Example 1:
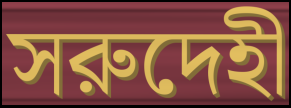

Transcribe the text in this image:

সরুদেহী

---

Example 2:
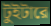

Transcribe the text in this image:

টুইটারে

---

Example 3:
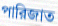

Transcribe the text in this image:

পারিজাত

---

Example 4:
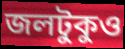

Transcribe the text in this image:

জলটুকুও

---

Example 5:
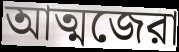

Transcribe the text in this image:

আত্মজেরা